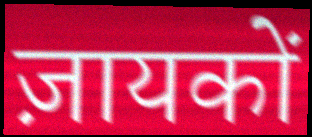
ज़ायकों